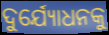
ଦୁର୍ଯ୍ୟୋଧନକୁ